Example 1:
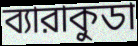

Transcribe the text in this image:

ব্যারাকুডা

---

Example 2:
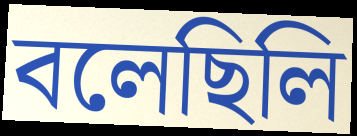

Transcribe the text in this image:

বলেছিলি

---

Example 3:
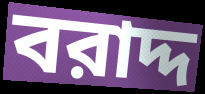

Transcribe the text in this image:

বরাদ্দ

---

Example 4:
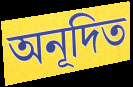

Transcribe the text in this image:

অনূদিত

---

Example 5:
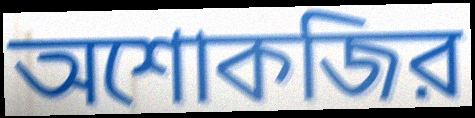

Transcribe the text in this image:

অশোকজির